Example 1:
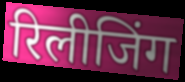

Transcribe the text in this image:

रिलीजिंग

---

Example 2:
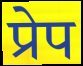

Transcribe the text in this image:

प्रेप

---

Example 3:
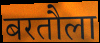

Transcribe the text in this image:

बरतौला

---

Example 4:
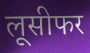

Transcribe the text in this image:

लूसीफर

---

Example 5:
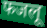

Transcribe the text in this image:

फजलू